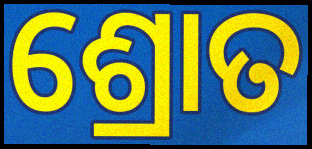
ଶ୍ରୋତ